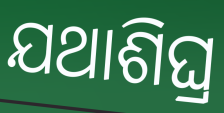
ଯଥାଶିଘ୍ର